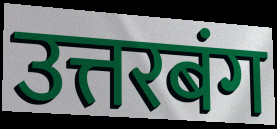
उत्तरबंग